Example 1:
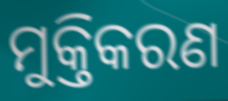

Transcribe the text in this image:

ମୁକ୍ତିକରଣ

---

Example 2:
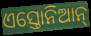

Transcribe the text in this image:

ଏସ୍ତୋନିଆନ୍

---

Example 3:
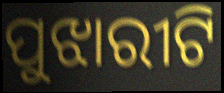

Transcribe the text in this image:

ପୁଝାରୀଟି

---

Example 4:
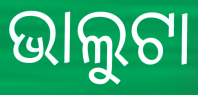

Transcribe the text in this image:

ଭାଲୁଟା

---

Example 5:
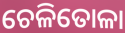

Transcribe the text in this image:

ଚେଳିତୋଳା